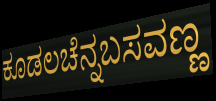
ಕೂಡಲಚೆನ್ನಬಸವಣ್ಣ